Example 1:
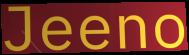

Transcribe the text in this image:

Jeeno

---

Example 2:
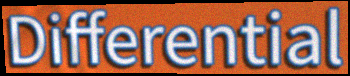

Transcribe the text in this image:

Differential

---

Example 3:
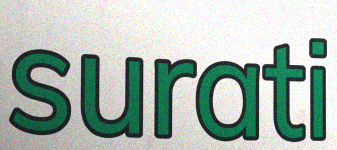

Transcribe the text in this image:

surati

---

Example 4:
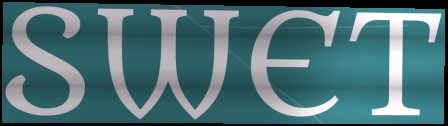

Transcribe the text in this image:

SWET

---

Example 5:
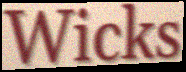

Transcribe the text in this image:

Wicks